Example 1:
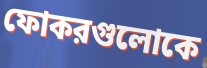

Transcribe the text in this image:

ফোকরগুলোকে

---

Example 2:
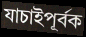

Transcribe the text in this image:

যাচাইপূর্বক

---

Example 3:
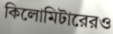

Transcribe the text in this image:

কিলোমিটারেরও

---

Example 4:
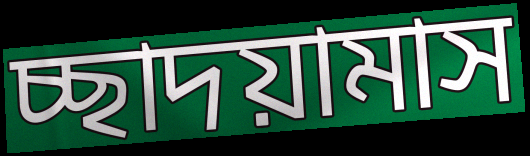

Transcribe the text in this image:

চ্ছাদয়ামাস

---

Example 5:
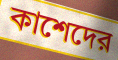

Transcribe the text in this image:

কাশেদের